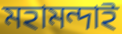
মহামন্দাই